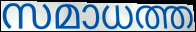
സമാധത്ത